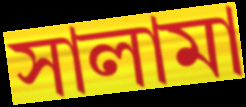
সালামা